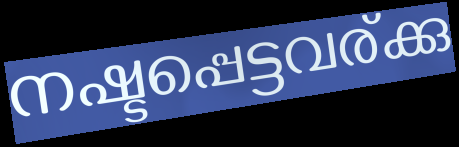
നഷ്ടപ്പെട്ടവര്ക്കു